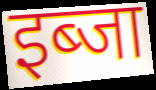
इब्जा